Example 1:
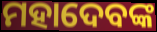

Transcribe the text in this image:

ମହାଦେବଙ୍କ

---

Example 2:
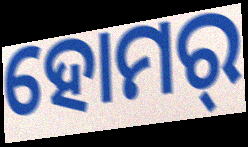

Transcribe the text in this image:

ହୋମର୍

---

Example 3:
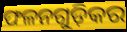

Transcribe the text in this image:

ଫଳନଗୁଡ଼ିକର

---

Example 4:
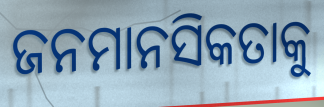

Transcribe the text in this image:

ଜନମାନସିକତାକୁ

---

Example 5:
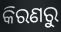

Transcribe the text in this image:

କିରଣରୁ